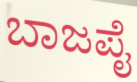
ಬಾಜಪೈ